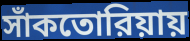
সাঁকতোরিয়ায়